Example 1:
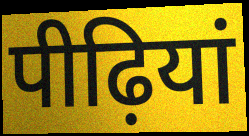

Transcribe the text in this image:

पीढ़ियां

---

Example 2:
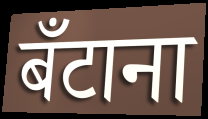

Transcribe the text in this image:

बँटाना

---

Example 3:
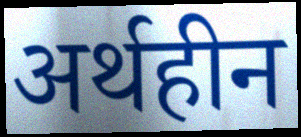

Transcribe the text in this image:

अर्थहीन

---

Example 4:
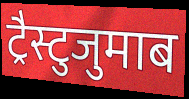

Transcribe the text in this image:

ट्रैस्टुजुमाब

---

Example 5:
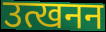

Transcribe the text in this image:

उत्खनन